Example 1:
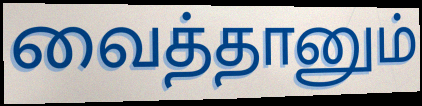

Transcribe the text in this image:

வைத்தானும்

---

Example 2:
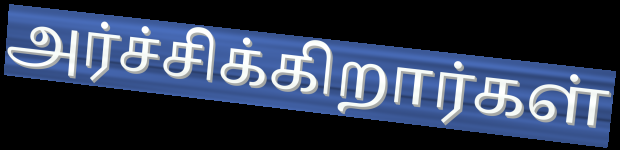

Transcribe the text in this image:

அர்ச்சிக்கிறார்கள்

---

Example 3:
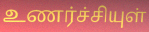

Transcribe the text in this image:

உணர்ச்சியுள்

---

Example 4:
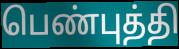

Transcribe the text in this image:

பெண்புத்தி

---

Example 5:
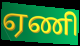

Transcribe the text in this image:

ஏணி